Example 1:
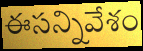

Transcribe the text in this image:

ఈసన్నివేశం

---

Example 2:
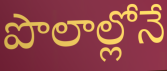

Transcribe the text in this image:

పొలాల్లోనే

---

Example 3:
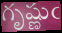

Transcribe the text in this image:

గృష్ణుఁ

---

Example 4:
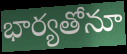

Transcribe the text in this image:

భార్యతోనూ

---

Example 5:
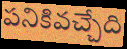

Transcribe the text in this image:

పనికివచ్చేది